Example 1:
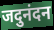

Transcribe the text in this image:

जदुनंदन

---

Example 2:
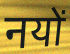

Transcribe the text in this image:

नयों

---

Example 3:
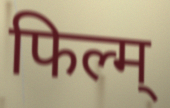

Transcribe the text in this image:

फिल्म्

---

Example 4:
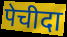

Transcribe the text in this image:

पेचीदा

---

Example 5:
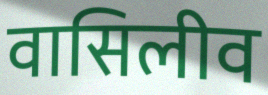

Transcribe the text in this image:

वासिलीव